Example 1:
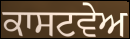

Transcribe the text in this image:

ਕਾਸਟਵੇਅ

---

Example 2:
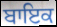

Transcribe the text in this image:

ਬਾਇਕ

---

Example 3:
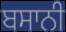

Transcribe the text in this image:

ਬਸਾਨੀ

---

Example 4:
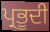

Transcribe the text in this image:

ਪ੍ਰਭੂਦੀ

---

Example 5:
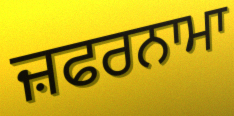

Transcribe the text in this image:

ਜ਼ਫਰਨਾਮਾ